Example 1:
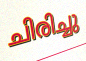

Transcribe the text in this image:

ചിരിച്ചു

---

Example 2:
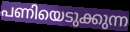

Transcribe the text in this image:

പണിയെടുക്കുന്ന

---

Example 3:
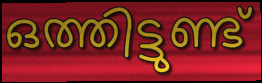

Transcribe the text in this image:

ഒത്തിട്ടുണ്ട്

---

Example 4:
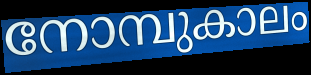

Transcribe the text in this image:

നോമ്പുകാലം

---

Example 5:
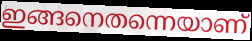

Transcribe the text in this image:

ഇങ്ങനെതന്നെയാണ്